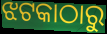
ଝଟକାଠାରୁ